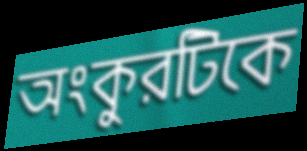
অংকুরটিকে